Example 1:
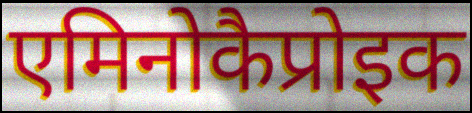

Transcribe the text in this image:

एमिनोकैप्रोइक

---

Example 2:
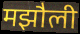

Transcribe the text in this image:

मझौली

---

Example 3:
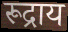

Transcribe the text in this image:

रूद्राय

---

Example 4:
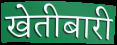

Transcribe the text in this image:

खेतीबारी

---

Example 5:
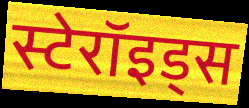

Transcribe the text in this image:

स्टेरॉइड्स